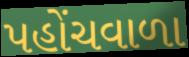
પહોંચવાળા